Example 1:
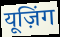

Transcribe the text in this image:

यूज़िंग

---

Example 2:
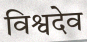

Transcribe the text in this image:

विश्वदेव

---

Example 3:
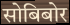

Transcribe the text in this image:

सोबिबोर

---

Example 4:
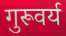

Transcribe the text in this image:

गुरूवर्य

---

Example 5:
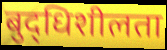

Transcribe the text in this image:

बुद्धिशीलता